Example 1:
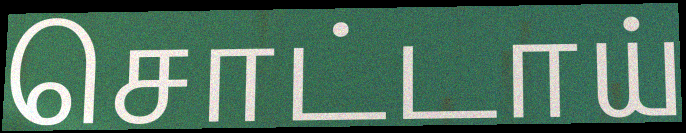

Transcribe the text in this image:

சொட்டாய்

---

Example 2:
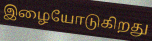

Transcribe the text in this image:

இழையோடுகிறது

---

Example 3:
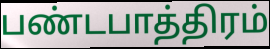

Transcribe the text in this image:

பண்டபாத்திரம்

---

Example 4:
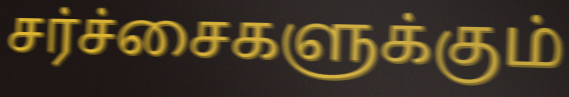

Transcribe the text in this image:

சர்ச்சைகளுக்கும்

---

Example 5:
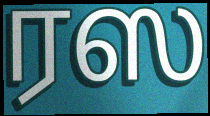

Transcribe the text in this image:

ரஸ